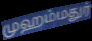
முஹம்மதுர்